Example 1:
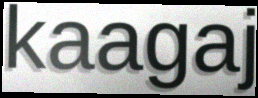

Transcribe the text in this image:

kaagaj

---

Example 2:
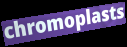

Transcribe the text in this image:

chromoplasts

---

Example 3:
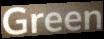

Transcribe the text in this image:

Green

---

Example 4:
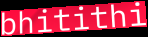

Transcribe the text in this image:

bhitithi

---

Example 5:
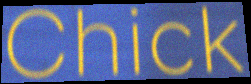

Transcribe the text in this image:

Chick